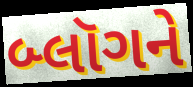
બ્લૉગને